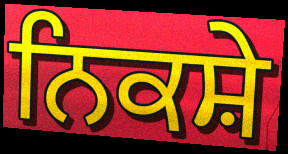
ਨਿਕਸ਼ੇ